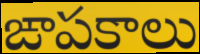
ఙాపకాలు